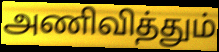
அணிவித்தும்